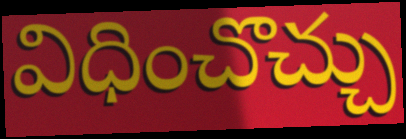
విధించొచ్చు